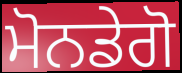
ਮੋਨਡੇਗੋ